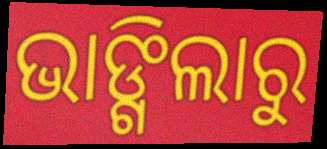
ଭାଙ୍ଗିଲାରୁ